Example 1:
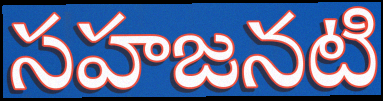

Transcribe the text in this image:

సహజనటి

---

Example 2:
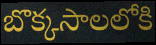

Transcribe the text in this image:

బొక్కసాలలోకి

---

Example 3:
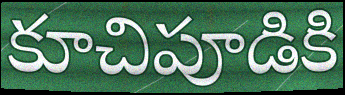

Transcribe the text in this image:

కూచిపూడికి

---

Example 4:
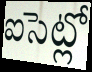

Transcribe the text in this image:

ఐసెట్లో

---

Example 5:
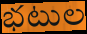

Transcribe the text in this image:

భటుల